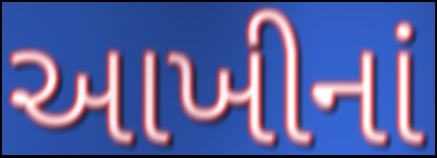
આખીનાં